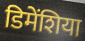
डिमेंशिया